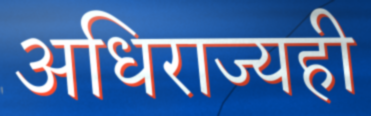
अधिराज्यही